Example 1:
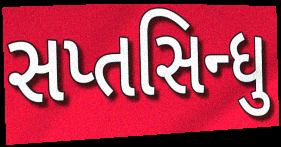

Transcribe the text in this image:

સપ્તસિન્ધુ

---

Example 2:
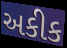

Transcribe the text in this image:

અકીક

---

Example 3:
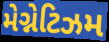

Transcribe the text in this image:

મેગ્નેટિઝમ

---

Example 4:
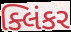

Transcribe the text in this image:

ક્લિંકર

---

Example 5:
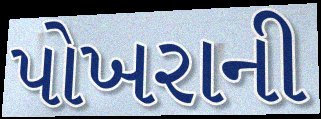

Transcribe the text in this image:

પોખરાની